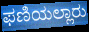
ಫಣಿಯಲ್ಲಾರು